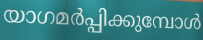
യാഗമർപ്പിക്കുമ്പോൾ